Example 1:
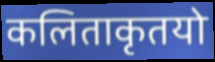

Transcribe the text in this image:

कलिताकृतयो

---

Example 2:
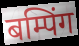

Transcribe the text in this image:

बम्पिंग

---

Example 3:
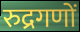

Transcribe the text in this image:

रुद्रगणों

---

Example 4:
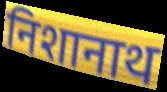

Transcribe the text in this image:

निशानाथ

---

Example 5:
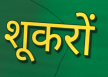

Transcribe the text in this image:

शूकरों